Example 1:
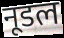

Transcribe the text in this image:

नूडल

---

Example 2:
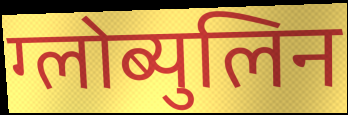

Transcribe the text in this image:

ग्लोब्युलिन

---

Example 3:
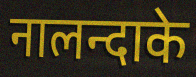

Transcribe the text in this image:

नालन्दाके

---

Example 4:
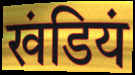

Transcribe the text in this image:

खंडियं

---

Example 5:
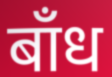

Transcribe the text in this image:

बाँध